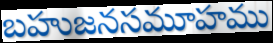
బహుజనసమూహము